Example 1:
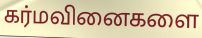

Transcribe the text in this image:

கர்மவினைகளை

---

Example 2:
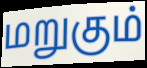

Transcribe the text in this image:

மறுகும்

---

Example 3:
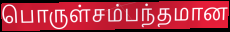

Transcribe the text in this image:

பொருள்சம்பந்தமான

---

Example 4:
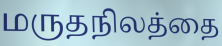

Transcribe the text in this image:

மருதநிலத்தை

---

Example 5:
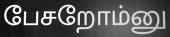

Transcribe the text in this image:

பேசறோம்னு